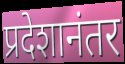
प्रदेशानंतर